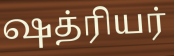
ஷத்ரியர்